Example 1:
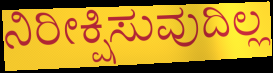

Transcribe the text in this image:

ನಿರೀಕ್ಷಿಸುವುದಿಲ್ಲ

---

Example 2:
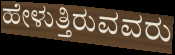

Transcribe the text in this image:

ಹೇಳುತ್ತಿರುವವರು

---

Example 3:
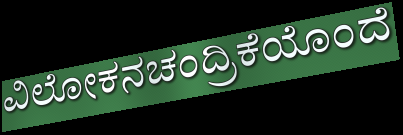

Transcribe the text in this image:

ವಿಲೋಕನಚಂದ್ರಿಕೆಯೊಂದೆ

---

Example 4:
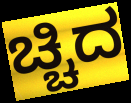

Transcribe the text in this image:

ಚ್ಚಿದ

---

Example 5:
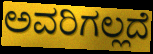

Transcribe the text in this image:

ಅವರಿಗಲ್ಲದೆ